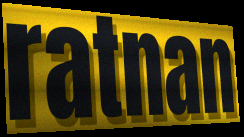
ratnan